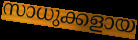
സാധുക്കളായ